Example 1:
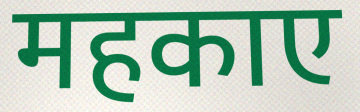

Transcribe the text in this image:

महकाए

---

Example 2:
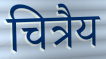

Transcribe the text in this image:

चित्रैय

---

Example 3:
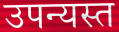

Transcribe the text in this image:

उपन्यस्त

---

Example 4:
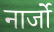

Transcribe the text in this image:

नार्जो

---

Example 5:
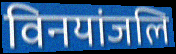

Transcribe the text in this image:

विनयांजलि